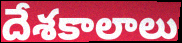
దేశకాలాలు